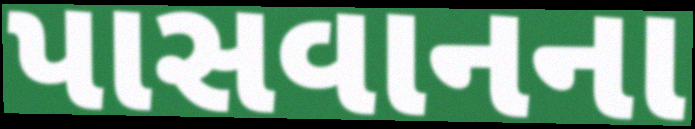
પાસવાનના